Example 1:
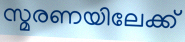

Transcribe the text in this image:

സ്മരണയിലേക്ക്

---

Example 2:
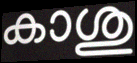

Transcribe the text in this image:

കാശു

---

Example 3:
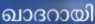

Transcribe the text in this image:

ഖാദറായി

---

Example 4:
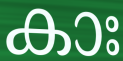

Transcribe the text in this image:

കാഃ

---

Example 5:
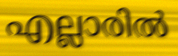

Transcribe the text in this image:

എല്ലാരിൽ